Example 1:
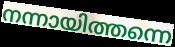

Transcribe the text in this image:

നന്നായിത്തന്നെ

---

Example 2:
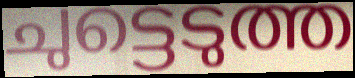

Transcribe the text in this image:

ചുട്ടെടുത്ത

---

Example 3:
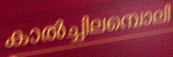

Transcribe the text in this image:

കാൽച്ചിലമ്പൊലി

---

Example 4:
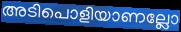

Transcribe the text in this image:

അടിപൊളിയാണല്ലോ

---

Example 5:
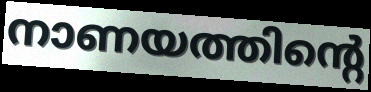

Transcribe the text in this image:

നാണയത്തിന്റെ